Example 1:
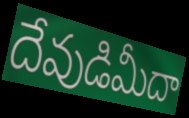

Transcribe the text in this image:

దేవుడిమీదా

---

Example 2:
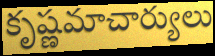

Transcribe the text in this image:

కృష్ణమాచార్యులు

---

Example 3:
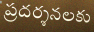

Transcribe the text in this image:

ప్రదర్శనలకు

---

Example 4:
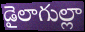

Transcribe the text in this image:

డైలాగుల్లా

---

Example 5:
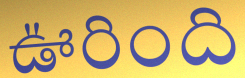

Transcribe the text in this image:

ఊరింది